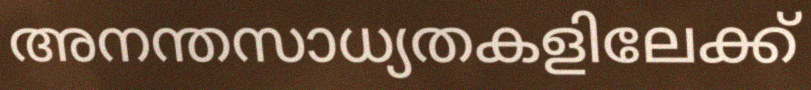
അനന്തസാധ്യതകളിലേക്ക്